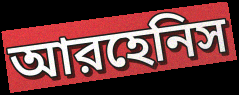
আরহেনিস